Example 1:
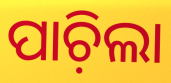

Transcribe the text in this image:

ପାଚ଼ିଲା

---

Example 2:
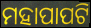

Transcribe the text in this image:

ମହାପାପଟି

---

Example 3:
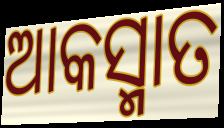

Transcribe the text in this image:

ଆକସ୍ମାତ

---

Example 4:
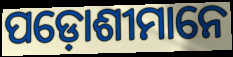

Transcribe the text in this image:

ପଡ଼ୋଶୀମାନେ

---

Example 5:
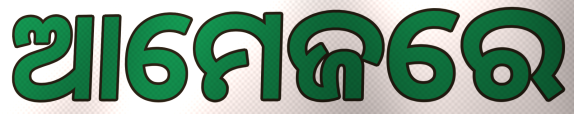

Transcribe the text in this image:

ଆମେଜରେ